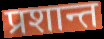
प्रशान्त